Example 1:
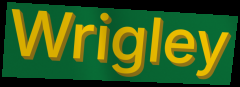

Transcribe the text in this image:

Wrigley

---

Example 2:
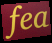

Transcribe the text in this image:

fea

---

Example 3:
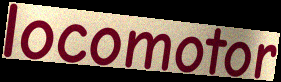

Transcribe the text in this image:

locomotor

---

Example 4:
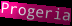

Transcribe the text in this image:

Progeria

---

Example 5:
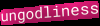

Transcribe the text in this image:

ungodliness